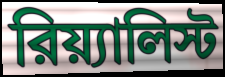
রিয়্যালিস্ট